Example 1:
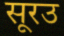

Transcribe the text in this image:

सूरउ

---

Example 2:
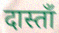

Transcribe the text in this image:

दास्ताँ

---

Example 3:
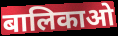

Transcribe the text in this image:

बालिकाओ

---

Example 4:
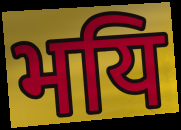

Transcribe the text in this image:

भयि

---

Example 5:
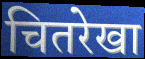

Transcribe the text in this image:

चितरेखा